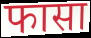
फासा